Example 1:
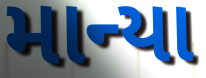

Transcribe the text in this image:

માન્યા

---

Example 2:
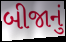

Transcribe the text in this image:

બીજાનું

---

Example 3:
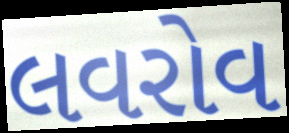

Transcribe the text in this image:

લવરોવ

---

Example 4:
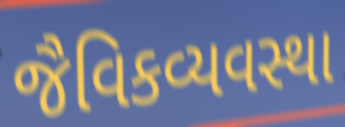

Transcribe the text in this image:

જૈવિકવ્યવસ્થા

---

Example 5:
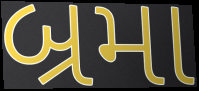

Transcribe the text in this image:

બ્રમા